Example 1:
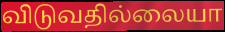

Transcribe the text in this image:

விடுவதில்லையா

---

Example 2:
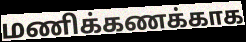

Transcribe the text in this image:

மணிக்கணக்காக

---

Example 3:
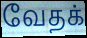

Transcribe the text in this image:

வேதக்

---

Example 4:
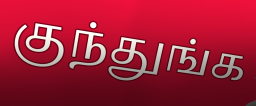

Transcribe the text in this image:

குந்துங்க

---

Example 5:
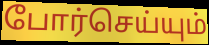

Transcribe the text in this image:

போர்செய்யும்